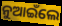
ନୁଆଇଁଲେ